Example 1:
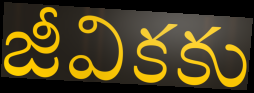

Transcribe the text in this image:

జీవికకు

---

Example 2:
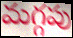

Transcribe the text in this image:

మగ్గపు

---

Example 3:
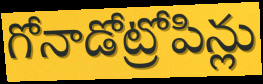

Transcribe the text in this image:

గోనాడోట్రోపిన్లు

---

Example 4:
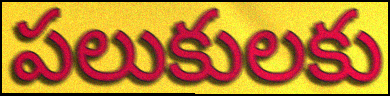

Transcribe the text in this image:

పలుకులకు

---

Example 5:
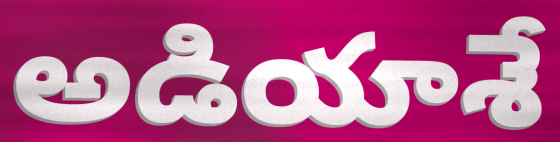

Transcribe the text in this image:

అడియాశే